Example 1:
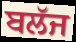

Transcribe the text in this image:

ਬਲੱਜ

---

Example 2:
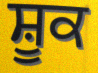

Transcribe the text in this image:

ਸ਼ੂਕ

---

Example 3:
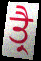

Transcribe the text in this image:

ਤ੍ਰੈ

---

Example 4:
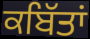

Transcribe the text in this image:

ਕਬਿੱਤਾਂ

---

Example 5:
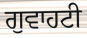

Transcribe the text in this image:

ਗੁਵਾਹਟੀ